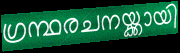
ഗ്രന്ഥരചനയ്ക്കായി